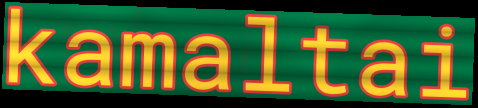
kamaltai